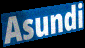
Asundi